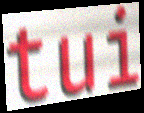
tui